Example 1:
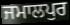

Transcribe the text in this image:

ਜਮਾਲਪੁਰ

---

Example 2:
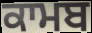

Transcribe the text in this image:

ਕਾਮਬ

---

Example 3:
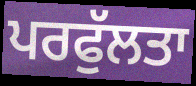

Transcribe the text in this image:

ਪਰਫੁੱਲਤਾ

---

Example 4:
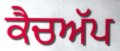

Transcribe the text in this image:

ਕੈਚਅੱਪ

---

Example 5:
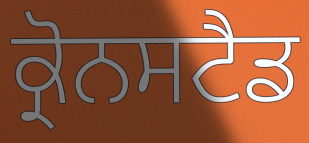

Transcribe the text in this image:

ਕ੍ਰੋਨਸਟੈਡ